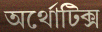
অর্থোটিক্স